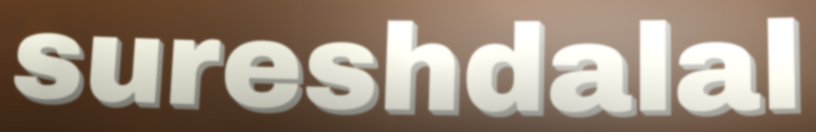
sureshdalal